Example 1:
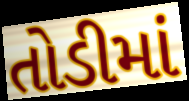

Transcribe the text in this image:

તોડીમાં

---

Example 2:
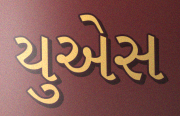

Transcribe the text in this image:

યુએસ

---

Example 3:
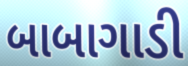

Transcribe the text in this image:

બાબાગાડી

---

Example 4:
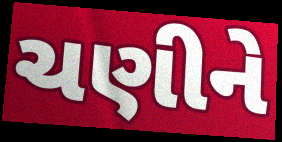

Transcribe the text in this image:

ચણીને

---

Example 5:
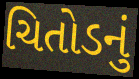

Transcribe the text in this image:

ચિતોડનું